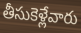
తీసుకెళ్లేవారు